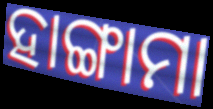
ହାଙ୍ଗାମା